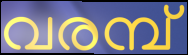
വരമ്പ്